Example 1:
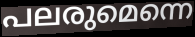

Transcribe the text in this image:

പലരുമെന്നെ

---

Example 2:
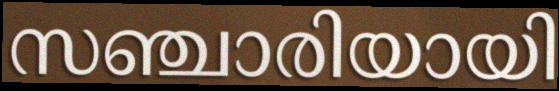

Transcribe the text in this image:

സഞ്ചാരിയായി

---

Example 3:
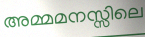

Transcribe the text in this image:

അമ്മമനസ്സിലെ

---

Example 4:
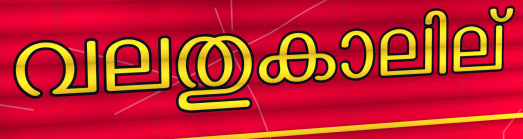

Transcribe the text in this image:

വലതുകാലില്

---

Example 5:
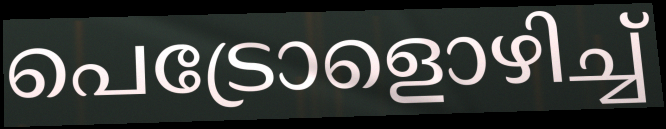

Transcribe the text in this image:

പെട്രോളൊഴിച്ച്